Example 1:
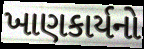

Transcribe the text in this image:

ખાણકાર્યનો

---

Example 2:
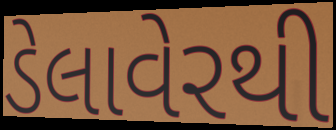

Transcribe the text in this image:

ડેલાવેરથી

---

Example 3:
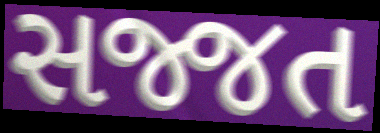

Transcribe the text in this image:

સજ્જત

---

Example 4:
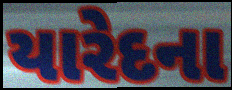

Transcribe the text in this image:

યારેદના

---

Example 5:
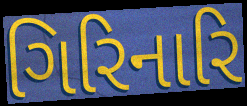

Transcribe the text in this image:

ગિરિનારિ